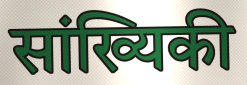
सांख्यिकी